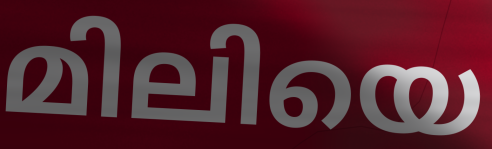
മിലിയെ